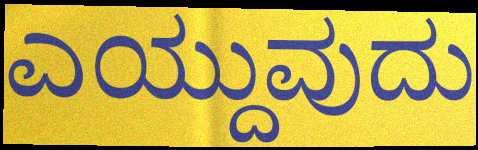
ಎಯ್ದುವುದು